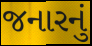
જનારનું